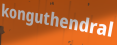
konguthendral